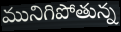
మునిగిపోతున్న